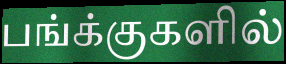
பங்க்குகளில்